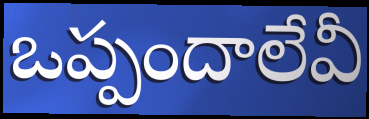
ఒప్పందాలేవీ